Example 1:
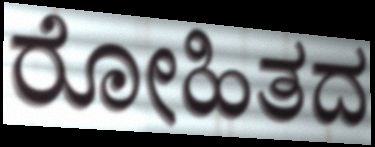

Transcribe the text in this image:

ರೋಹಿತದ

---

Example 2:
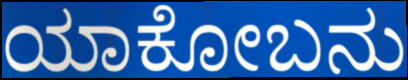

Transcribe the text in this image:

ಯಾಕೋಬನು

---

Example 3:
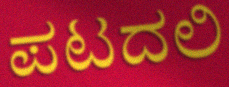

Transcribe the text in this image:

ಪಟದಲಿ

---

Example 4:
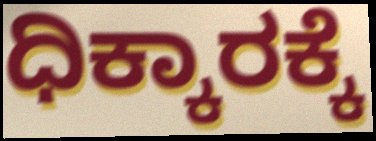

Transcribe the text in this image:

ಧಿಕ್ಕಾರಕ್ಕೆ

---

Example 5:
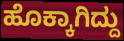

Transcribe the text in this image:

ಹೊಕ್ಕಾಗಿದ್ದು